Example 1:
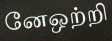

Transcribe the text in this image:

னேஒற்றி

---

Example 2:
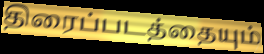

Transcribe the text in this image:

திரைப்படத்தையும்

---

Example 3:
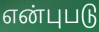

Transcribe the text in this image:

என்புபடு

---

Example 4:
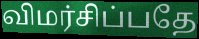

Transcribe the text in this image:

விமர்சிப்பதே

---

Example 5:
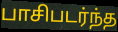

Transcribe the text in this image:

பாசிபடர்ந்த